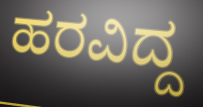
ಹರವಿದ್ದ